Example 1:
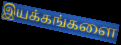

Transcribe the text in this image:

இயக்கங்களை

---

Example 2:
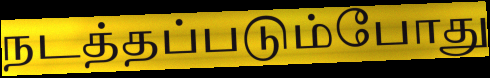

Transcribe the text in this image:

நடத்தப்படும்போது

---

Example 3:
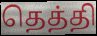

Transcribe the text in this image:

தெத்தி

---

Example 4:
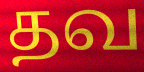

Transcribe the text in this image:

தவ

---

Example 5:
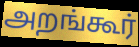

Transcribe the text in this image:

அறங்கூர்